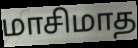
மாசிமாத